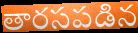
తారసపడిన